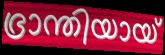
ഭ്രാന്തിയായ്